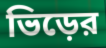
ভিড়ের